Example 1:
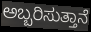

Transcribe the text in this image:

ಅಬ್ಬರಿಸುತ್ತಾನೆ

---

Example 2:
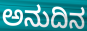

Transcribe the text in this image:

ಅನುದಿನ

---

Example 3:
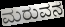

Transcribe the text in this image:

ಮರುವನ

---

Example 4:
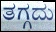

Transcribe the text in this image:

ತಗ್ಗದು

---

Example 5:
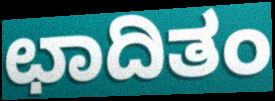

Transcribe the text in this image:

ಛಾದಿತಂ